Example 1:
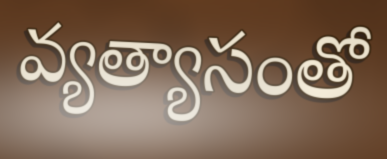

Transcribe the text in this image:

వ్యత్యాసంతో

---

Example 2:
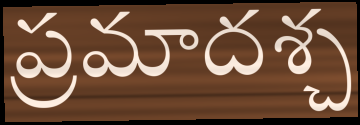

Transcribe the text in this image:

ప్రమాదశ్చ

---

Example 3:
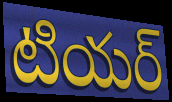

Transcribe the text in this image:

టియర్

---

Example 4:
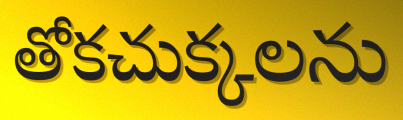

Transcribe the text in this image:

తోకచుక్కలను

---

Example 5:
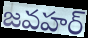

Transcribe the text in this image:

జవహర్